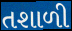
તશાળી